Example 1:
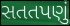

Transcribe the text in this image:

સતતપણું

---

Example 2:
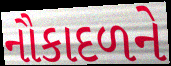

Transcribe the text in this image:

નૌકાદળને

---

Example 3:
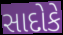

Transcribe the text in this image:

સાદોકે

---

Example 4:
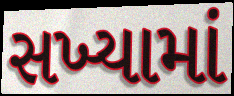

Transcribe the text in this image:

સખ્યામાં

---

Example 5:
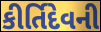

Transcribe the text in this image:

કીર્તિદેવની